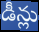
డీన్లు